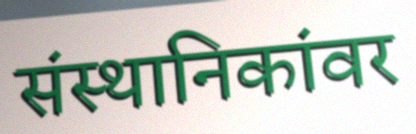
संस्थानिकांवर